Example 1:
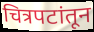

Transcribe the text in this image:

चित्रपटांतून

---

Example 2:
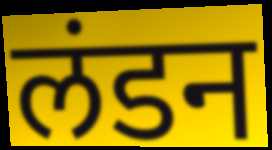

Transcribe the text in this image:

लंडन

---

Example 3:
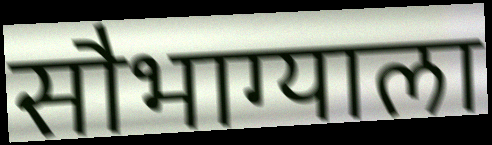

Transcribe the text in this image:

सौभाग्याला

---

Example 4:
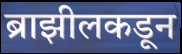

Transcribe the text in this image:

ब्राझीलकडून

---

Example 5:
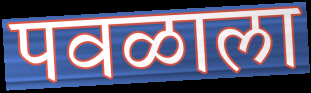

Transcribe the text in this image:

पवळाला